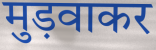
मुड़वाकर